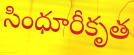
సింధూరీకృత